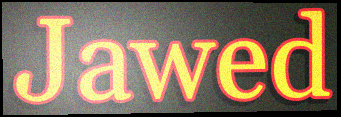
Jawed